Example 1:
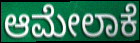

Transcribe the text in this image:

ಆಮೇಲಾಕೆ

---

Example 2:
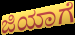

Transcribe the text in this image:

ಜಿಯಾಗೆ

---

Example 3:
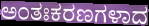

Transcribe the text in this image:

ಅಂತಃಕರಣಗಳಾದ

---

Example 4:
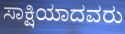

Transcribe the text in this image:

ಸಾಕ್ಷಿಯಾದವರು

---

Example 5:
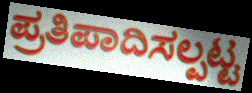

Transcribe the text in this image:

ಪ್ರತಿಪಾದಿಸಲ್ಪಟ್ಟ